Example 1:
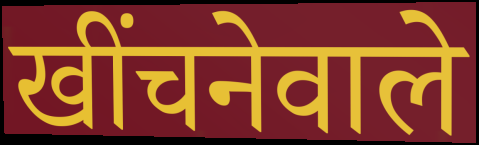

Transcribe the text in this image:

खींचनेवाले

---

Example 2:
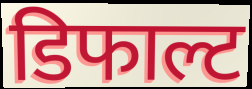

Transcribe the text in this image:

डिफाल्ट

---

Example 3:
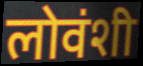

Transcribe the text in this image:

लोवंशी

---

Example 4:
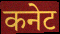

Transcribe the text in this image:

कनेट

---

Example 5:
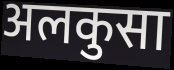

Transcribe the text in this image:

अलकुसा